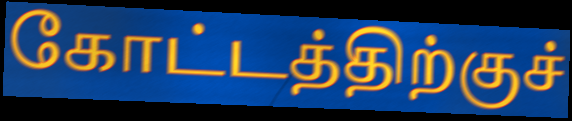
கோட்டத்திற்குச்